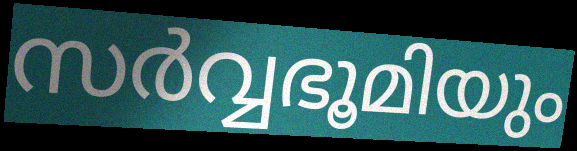
സർവ്വഭൂമിയും